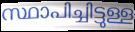
സ്ഥാപിച്ചിട്ടുള്ള